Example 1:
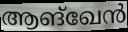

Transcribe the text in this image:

ആങ്ഖേൻ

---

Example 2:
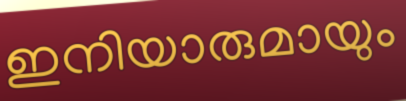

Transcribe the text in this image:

ഇനിയാരുമായും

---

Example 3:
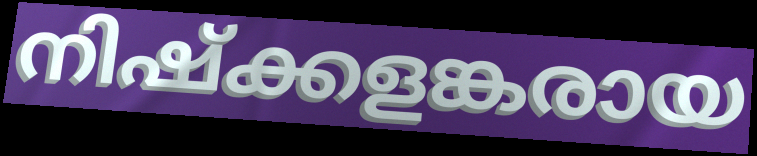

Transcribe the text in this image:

നിഷ്ക്കളങ്കരായ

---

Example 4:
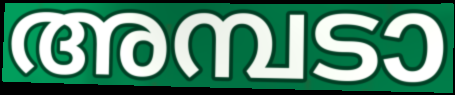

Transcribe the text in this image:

അമ്പടാ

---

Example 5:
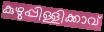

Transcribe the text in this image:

കുഴുപ്പിള്ളിക്കാവ്